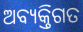
ଅବ୍ୟକ୍ତିଗତ